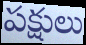
పక్షులు